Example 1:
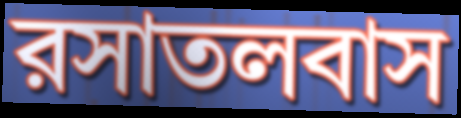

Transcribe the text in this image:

রসাতলবাস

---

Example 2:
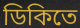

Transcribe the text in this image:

ডিকিতে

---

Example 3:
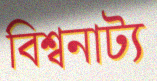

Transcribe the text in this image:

বিশ্বনাট্য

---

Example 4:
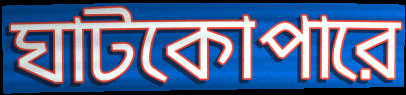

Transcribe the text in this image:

ঘাটকোপারে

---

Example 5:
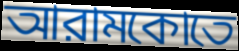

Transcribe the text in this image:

আরামকোতে